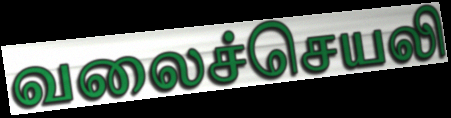
வலைச்செயலி